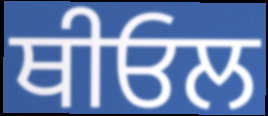
ਥੀਓਲ